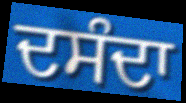
ਦਸੰਦਾ